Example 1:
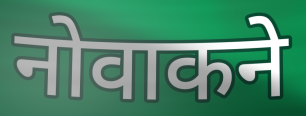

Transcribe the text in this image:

नोवाकने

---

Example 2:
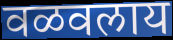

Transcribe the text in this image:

वळवलाय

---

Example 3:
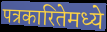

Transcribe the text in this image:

पत्रकारितेमध्ये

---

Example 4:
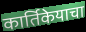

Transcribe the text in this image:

कार्तिकेयाचा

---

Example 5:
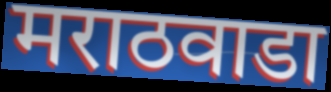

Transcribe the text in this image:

मराठवाडा